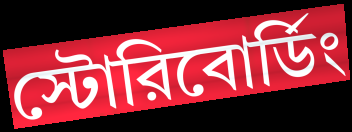
স্টোরিবোর্ডিং